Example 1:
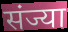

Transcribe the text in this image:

संज्या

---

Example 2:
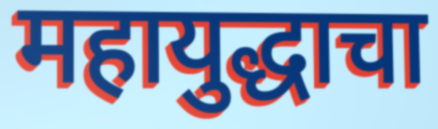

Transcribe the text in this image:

महायुद्धाचा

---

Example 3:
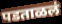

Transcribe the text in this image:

पडताळलं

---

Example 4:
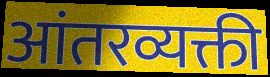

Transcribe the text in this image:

आंतरव्यक्ती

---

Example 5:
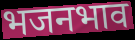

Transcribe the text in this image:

भजनभाव